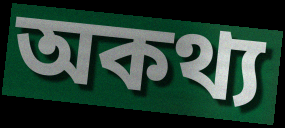
অকথ্য